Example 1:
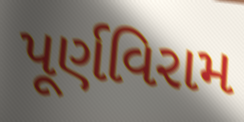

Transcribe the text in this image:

પૂર્ણવિરામ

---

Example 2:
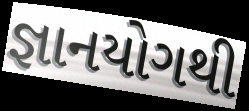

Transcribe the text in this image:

જ્ઞાનયોગથી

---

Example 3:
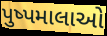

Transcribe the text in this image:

પુષ્પમાલાઓ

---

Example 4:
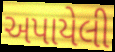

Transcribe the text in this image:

અપાયેલી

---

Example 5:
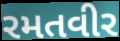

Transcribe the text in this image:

રમતવીર